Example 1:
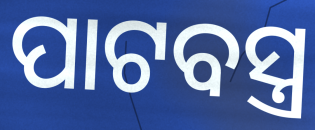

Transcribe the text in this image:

ପାଟବସ୍ତ୍ର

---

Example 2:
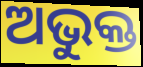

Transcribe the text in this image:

ଅଭୁକ୍ତ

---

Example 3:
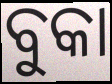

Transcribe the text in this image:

ବୁକା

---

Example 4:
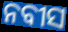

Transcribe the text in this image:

ନବୀସ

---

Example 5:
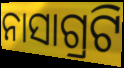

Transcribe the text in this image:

ନାସାଗ୍ରଟି